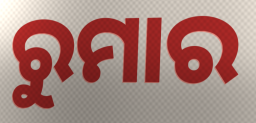
ରୁମାର